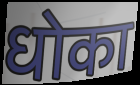
धोका